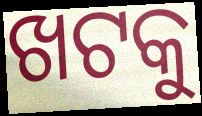
ଖଟକୁ